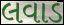
લવાડ